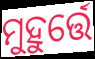
ମୁହୁର୍ତ୍ତେ